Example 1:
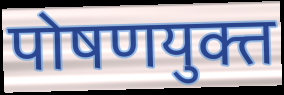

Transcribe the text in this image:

पोषणयुक्त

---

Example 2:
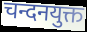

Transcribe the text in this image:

चन्दनयुक्त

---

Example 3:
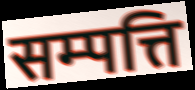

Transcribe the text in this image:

सम्पत्ति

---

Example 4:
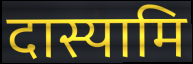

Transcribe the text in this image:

दास्यामि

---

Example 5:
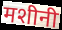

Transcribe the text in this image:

मशीनी